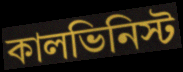
কালভিনিস্ট